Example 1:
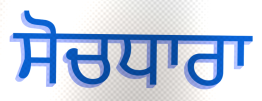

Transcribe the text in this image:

ਸੋਚਧਾਰਾ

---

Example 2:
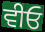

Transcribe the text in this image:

ਵੀਓ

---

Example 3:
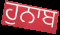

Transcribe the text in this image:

ਹੁਨਾਬ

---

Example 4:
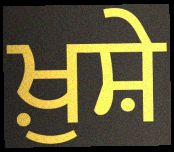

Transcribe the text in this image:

ਖ਼ੁਸ਼ੇ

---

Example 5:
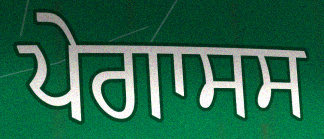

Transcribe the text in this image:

ਪੇਗਾਸਸ